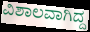
ವಿಶಾಲವಾಗಿದ್ದ